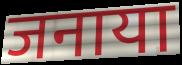
जनाया